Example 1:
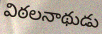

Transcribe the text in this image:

విఠలనాథుడు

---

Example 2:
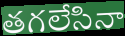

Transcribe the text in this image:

తగలేసినా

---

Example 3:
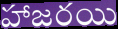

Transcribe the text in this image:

హాజరయి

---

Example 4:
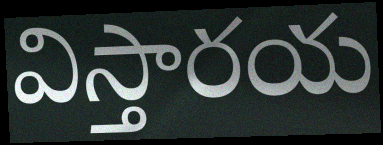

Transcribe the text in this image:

విస్తారయ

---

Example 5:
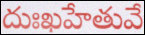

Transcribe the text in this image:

దుఃఖహేతువే